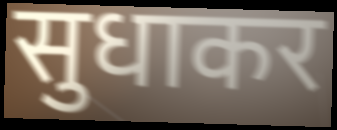
सुधाकर